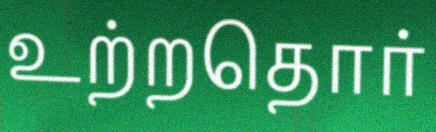
உற்றதொர்